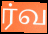
ர்வ